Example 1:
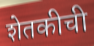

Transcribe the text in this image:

शेतकीची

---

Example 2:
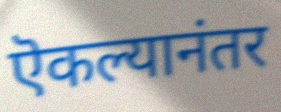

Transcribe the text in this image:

ऎकल्यानंतर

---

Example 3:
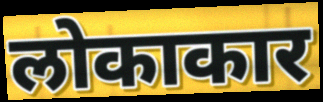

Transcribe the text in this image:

लोकाकार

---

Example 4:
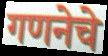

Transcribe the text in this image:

गणनेचे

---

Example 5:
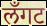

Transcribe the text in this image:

लँगट